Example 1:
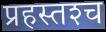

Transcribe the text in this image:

प्रहस्तश्च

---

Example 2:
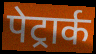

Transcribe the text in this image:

पेट्रार्क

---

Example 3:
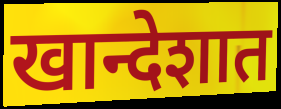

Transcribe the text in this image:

खान्देशात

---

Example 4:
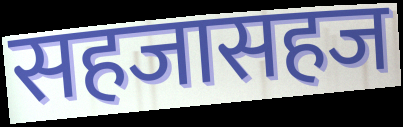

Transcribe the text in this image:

सहजासहज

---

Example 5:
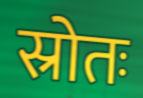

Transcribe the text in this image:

स्रोतः